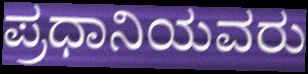
ಪ್ರಧಾನಿಯವರು